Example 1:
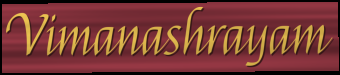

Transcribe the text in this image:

Vimanashrayam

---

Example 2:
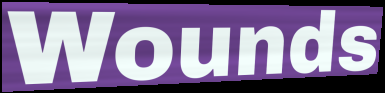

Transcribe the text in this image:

Wounds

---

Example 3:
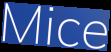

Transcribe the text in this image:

Mice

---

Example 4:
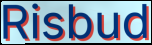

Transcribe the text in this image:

Risbud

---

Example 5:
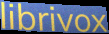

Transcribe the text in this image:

librivox